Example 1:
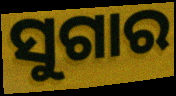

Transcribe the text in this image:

ସୁଗାର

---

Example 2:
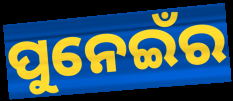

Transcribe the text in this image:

ପୁନେଇଁର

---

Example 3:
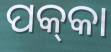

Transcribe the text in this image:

ପକ୍‌କା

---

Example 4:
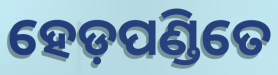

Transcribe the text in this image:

ହେଡ଼ପଣ୍ଡିତେ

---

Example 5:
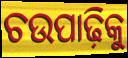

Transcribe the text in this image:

ଚଉପାଢ଼ିକୁ